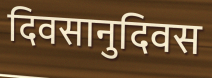
दिवसानुदिवस